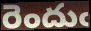
రెందుఁ